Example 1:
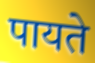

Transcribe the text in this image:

पायते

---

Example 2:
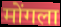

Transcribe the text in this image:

मोंगला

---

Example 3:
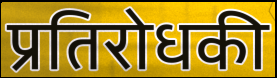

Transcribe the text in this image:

प्रतिरोधकी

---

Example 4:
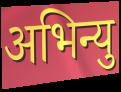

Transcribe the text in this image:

अभिन्यु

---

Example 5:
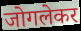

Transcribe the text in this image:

जोगलेकर